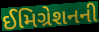
ઈમિગ્રેશનની